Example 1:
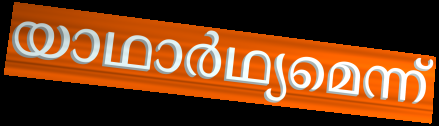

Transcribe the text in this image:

യാഥാർഥ്യമെന്ന്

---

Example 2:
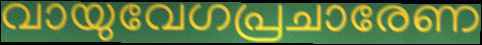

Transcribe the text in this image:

വായുവേഗപ്രചാരേണ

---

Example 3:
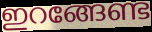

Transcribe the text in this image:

ഇറങ്ങേണ്ട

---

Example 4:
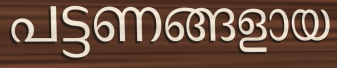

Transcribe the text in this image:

പട്ടണങ്ങളായ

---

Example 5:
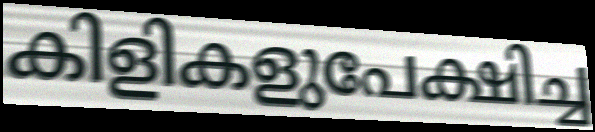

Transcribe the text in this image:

കിളികളുപേക്ഷിച്ച